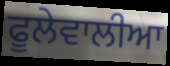
ਫੂਲੇਵਾਲੀਆ